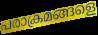
പരാക്രമങ്ങളെ